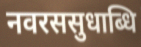
नवरससुधाब्धि